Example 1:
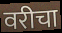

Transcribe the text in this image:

वरीचा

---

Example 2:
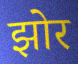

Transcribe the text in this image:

झोर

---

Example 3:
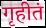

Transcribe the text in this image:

गृहीतं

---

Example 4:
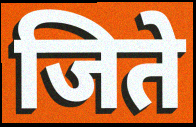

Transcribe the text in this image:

जिते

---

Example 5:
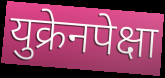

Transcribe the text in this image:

युक्रेनपेक्षा